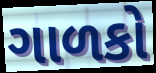
ગાળકો